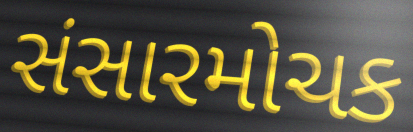
સંસારમોચક